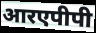
आरएपीपी